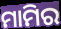
ମାମିର